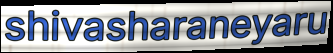
shivasharaneyaru